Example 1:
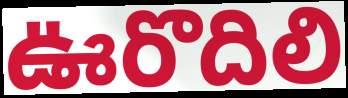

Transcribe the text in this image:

ఊరొదిలి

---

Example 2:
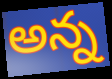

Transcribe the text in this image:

అన్న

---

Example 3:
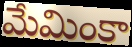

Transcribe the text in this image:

మేమింకా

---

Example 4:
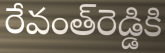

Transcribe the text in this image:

రేవంత్‌రెడ్డికి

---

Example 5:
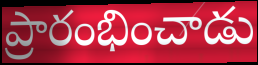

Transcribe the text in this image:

ప్రారంభించాడు